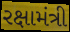
રક્ષામંત્રી